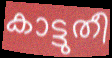
കാട്ടുതീ